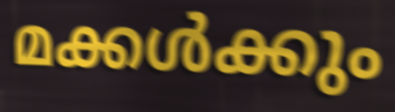
മക്കൾക്കും